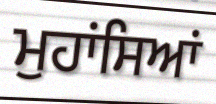
ਮੁਹਾਂਸਿਆਂ